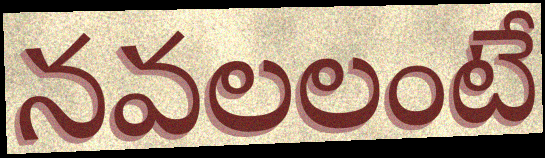
నవలలంటే